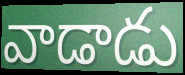
వాడాడు